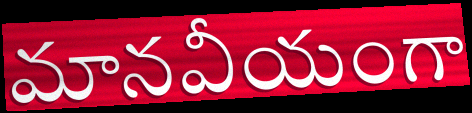
మానవీయంగా